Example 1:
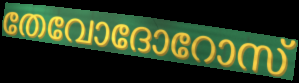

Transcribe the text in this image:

തേവോദോറോസ്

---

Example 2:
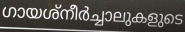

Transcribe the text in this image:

ഗായശ്നീർച്ചാലുകളുടെ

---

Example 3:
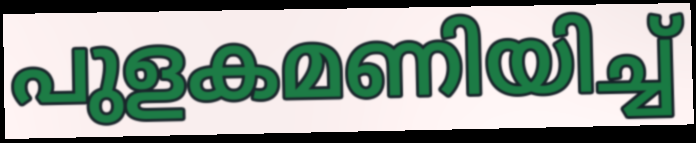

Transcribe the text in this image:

പുളകമണിയിച്ച്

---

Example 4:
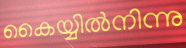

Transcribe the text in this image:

കൈയ്യിൽനിന്നു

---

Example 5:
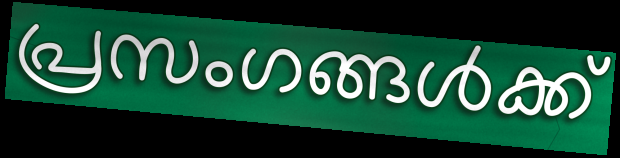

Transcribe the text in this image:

പ്രസംഗങ്ങൾക്ക്